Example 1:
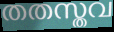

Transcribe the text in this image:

തതസ്തവ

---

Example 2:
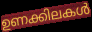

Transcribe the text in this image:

ഉണക്കിലകൾ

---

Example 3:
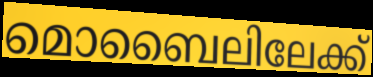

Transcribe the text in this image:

മൊബൈലിലേക്ക്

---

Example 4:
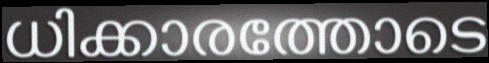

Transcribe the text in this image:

ധിക്കാരത്തോടെ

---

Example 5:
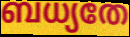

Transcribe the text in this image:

ബധ്യതേ